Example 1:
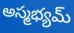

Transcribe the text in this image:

అస్మభ్యమ్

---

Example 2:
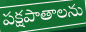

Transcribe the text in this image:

పక్షపాతాలను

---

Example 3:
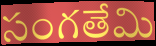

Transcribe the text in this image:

సంగతేమి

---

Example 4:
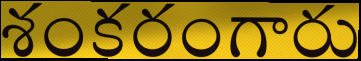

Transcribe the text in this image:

శంకరంగారు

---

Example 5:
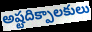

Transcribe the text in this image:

అష్టదిక్పాలకులు